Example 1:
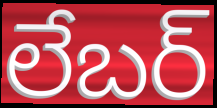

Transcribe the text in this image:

లేబర్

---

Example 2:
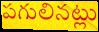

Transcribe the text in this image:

పగులినట్లు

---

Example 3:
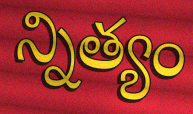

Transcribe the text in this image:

న్నిత్యం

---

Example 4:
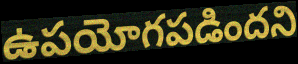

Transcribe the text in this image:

ఉపయోగపడిందని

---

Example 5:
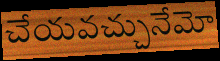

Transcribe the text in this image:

చేయవచ్చునేమో